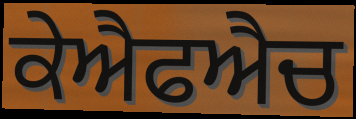
ਕੇਐਫਐਚ